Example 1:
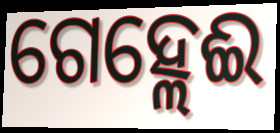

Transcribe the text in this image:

ଗେହ୍ଲେଈ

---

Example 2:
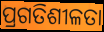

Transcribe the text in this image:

ପ୍ରଗତିଶୀଳତା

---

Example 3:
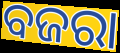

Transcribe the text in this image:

ବଜରା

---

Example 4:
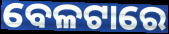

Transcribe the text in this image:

ବେଳଟାରେ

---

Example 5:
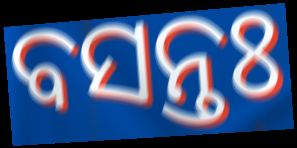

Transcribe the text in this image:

ବସନ୍ତଃ